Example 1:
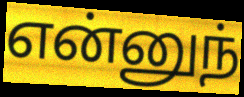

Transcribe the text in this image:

என்னுந்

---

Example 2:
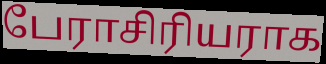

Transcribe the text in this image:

பேராசிரியராக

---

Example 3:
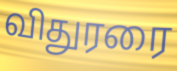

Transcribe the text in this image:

விதுரரை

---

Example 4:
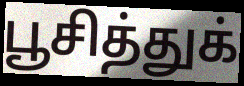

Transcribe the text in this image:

பூசித்துக்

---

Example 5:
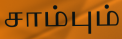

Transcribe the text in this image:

சாம்பும்